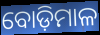
ବୋଡ଼ିମାଳ